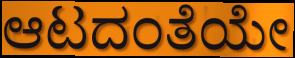
ಆಟದಂತೆಯೇ